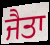
ਜੈਤਾ